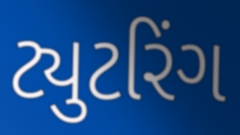
ટ્યુટરિંગ